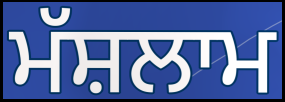
ਮੱਸ਼ਲਾਮ